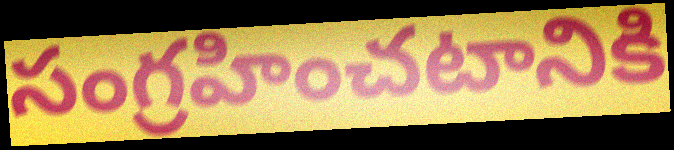
సంగ్రహించటానికి